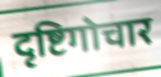
दृष्टिगोचार